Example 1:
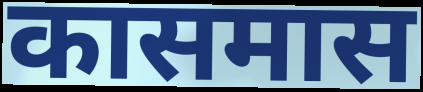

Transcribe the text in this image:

कासमास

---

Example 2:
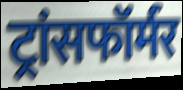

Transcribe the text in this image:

ट्रांसफॉर्मर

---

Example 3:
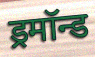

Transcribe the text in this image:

ड्रमॉन्ड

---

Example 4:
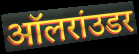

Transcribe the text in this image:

ऑलरांउडर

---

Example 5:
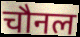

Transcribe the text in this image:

चौनल